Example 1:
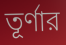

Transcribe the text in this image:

তূর্ণার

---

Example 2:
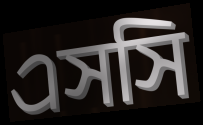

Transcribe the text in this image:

এসসি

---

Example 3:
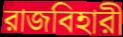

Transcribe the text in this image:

রাজবিহারী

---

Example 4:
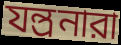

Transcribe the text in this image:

যন্ত্রনারা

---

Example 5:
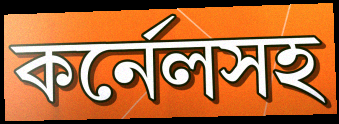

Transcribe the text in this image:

কর্নেলসহ